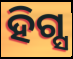
ହିଗ୍ସ